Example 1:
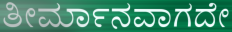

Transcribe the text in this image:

ತೀರ್ಮಾನವಾಗದೇ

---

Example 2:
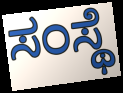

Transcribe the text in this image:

ಸಂಸ್ಥೆ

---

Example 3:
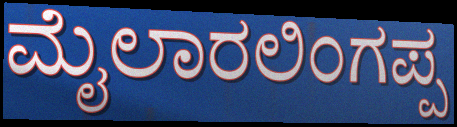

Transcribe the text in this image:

ಮೈಲಾರಲಿಂಗಪ್ಪ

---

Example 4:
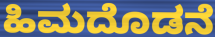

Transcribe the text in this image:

ಹಿಮದೊಡನೆ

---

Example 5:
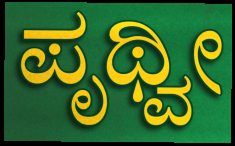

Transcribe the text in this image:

ಪೃಥ್ವೀ